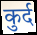
कुर्द